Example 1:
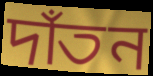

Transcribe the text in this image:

দাঁতন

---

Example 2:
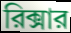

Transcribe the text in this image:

রিক্সার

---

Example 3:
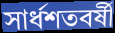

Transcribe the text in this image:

সার্ধশতবর্ষী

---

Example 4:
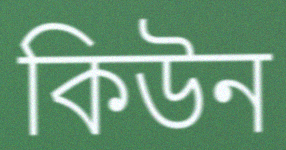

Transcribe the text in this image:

কিউন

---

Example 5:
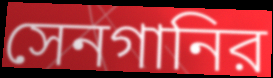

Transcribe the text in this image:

সেনগানির